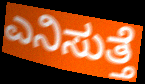
ಎನಿಸುತ್ತೆ